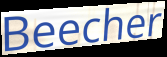
Beecher